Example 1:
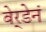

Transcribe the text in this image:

बेर्डेनं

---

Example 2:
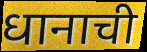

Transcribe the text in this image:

धानाची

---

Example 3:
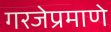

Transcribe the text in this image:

गरजेप्रमाणे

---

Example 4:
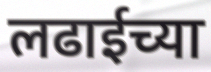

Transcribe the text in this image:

लढाईच्या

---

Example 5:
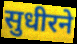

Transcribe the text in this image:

सुधीरने